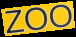
ZOO